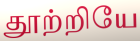
தூற்றியே